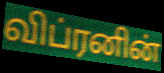
விப்ரனின்